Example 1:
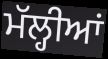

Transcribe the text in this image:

ਮੱਲ੍ਹੀਆਂ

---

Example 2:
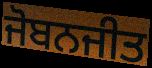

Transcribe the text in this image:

ਜੋਬਨਜੀਤ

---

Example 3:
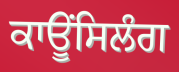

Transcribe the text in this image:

ਕਾਊਂਸਿਲੰਗ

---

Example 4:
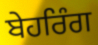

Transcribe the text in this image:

ਬੇਹਰਿੰਗ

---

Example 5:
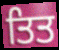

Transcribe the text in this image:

ਤਿਤ